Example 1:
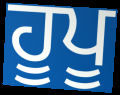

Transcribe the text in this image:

ਹੂਪੂ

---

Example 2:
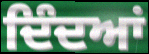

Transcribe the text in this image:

ਦਿੰਦਆਂ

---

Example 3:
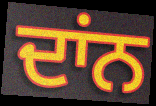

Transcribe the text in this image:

ਦਾਂਨ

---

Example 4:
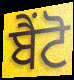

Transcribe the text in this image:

ਬੈਂਟੋ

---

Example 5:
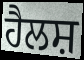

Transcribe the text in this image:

ਹੈਲਸ਼